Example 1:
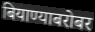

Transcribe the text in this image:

बियाण्याबरोबर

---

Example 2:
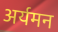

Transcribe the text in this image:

अर्यमन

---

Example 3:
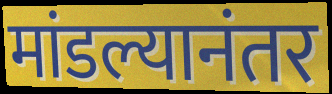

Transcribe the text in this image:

मांडल्यानंतर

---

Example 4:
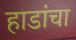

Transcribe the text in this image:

हाडांचा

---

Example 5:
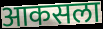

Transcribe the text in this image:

आकसला